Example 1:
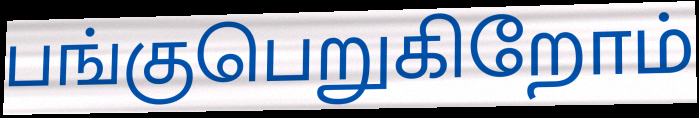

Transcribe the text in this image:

பங்குபெறுகிறோம்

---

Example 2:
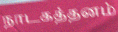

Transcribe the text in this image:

நாடகத்தனம்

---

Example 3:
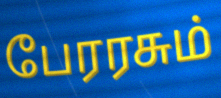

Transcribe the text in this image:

பேரரசும்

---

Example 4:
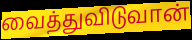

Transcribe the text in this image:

வைத்துவிடுவான்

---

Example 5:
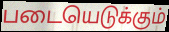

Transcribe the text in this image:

படையெடுக்கும்